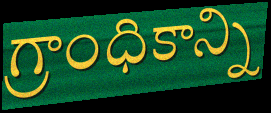
గ్రాంధికాన్ని